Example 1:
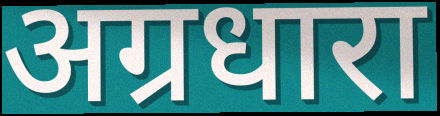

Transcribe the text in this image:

अग्रधारा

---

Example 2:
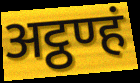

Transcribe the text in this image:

अट्ठण्हं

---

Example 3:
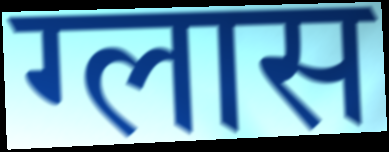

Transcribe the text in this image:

ग्लास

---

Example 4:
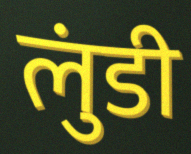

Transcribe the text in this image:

लुंडी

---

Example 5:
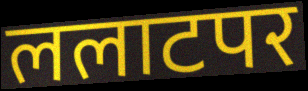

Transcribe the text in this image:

ललाटपर